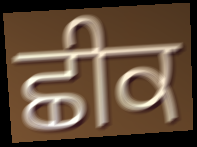
ਛੀਕ